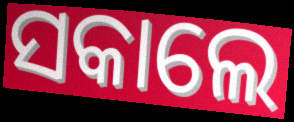
ସକାଲେ